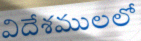
విదేశములలో